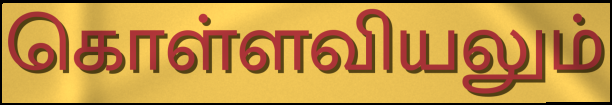
கொள்ளவியலும்